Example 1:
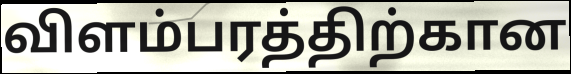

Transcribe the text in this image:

விளம்பரத்திற்கான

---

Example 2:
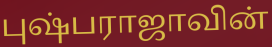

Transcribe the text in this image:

புஷ்பராஜாவின்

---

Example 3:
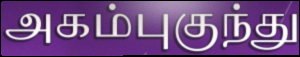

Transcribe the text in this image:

அகம்புகுந்து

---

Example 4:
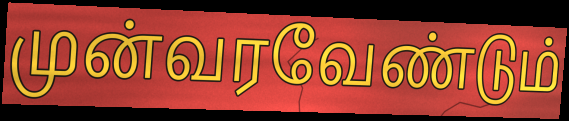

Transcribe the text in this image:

முன்வரவேண்டும்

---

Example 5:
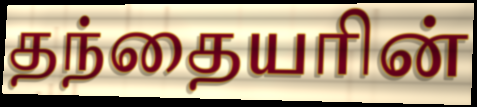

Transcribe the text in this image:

தந்தையரின்